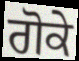
ਗੋਕੇ